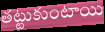
తట్టుకుంటాయి